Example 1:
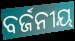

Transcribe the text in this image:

ବର୍ଜନୀୟ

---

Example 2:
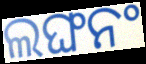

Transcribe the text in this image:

ଲଙ୍ଘନଂ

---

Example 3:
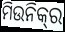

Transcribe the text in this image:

ମିଉନିକ୍‌ର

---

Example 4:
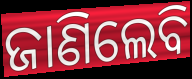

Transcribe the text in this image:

ଜାଣିଲେବି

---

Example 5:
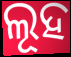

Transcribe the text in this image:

ଲୂହ